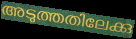
അടുത്തതിലേക്കു